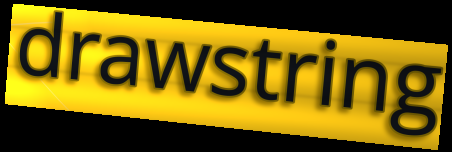
drawstring